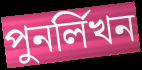
পুনর্লিখন